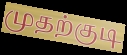
முதற்குடி